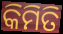
କିମିତି